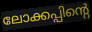
ലോക്കപ്പിന്റെ